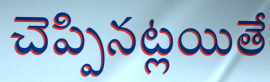
చెప్పినట్లయితే